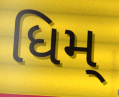
ધિમ્